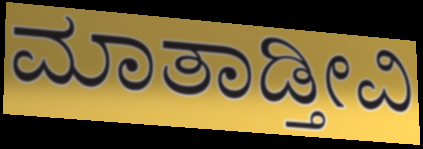
ಮಾತಾಡ್ತೀವಿ